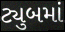
ટ્યુબમાં